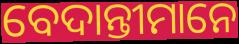
ବେଦାନ୍ତୀମାନେ